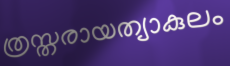
ത്രസ്തരായത്യാകുലം